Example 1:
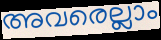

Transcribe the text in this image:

അവരെല്ലാം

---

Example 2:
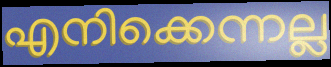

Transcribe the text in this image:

എനിക്കെന്നല്ല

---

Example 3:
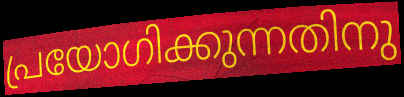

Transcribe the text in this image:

പ്രയോഗിക്കുന്നതിനു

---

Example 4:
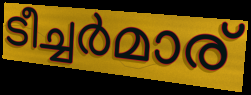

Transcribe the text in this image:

ടീച്ചർമാര്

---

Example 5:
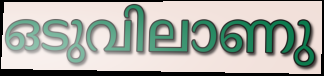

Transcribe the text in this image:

ഒടുവിലാണു